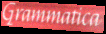
Grammatica